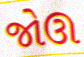
જોઊ